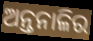
ଅନ୍ତନାଳିର